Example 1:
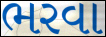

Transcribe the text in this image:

ભરવા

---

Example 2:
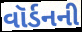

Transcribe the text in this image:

વૉર્ડનની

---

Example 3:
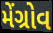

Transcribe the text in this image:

મેંગ્રોવ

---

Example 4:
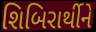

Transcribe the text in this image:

શિબિરાર્થીને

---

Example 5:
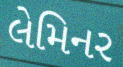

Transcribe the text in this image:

લેમિનર